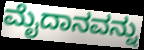
ಮೈದಾನವನ್ನು